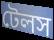
টেলস